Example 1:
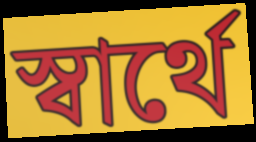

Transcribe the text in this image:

স্বার্থে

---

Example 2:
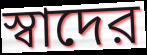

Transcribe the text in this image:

স্বাদের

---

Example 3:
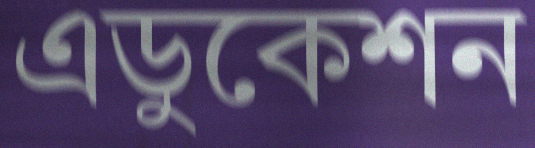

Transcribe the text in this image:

এডুকেশন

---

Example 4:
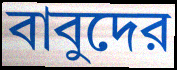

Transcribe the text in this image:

বাবুদের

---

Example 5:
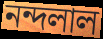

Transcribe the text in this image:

নন্দলাল